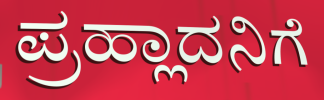
ಪ್ರಹ್ಲಾದನಿಗೆ